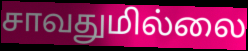
சாவதுமில்லை